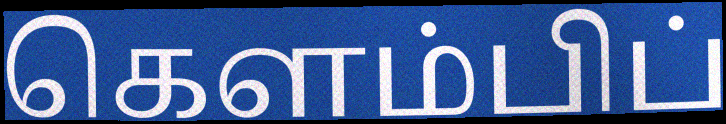
கௌம்பிப்